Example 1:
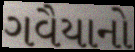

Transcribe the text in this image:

ગવૈયાનો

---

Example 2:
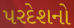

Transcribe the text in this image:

પરદેશનો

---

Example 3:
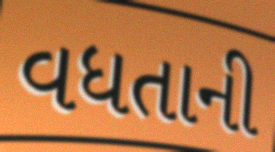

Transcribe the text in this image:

વધતાની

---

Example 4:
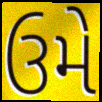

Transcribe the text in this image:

ઉમે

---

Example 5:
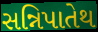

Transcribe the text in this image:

સન્નિપાતેથ